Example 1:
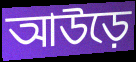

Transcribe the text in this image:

আউড়ে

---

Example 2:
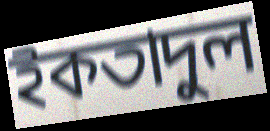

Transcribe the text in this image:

ইকতাদুল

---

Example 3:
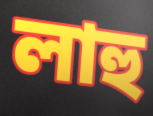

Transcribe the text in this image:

লাহু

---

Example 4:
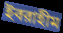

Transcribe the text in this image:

ইবরাহীম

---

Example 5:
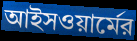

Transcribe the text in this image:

আইসওয়ার্মের